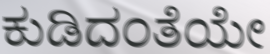
ಕುಡಿದಂತೆಯೇ